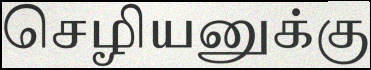
செழியனுக்கு